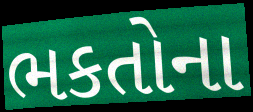
ભકતોના